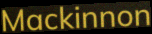
Mackinnon